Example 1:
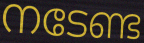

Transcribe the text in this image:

നടേണ്ട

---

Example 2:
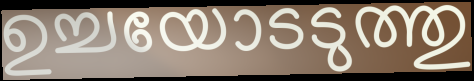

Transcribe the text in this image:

ഉച്ചയോടടുത്തു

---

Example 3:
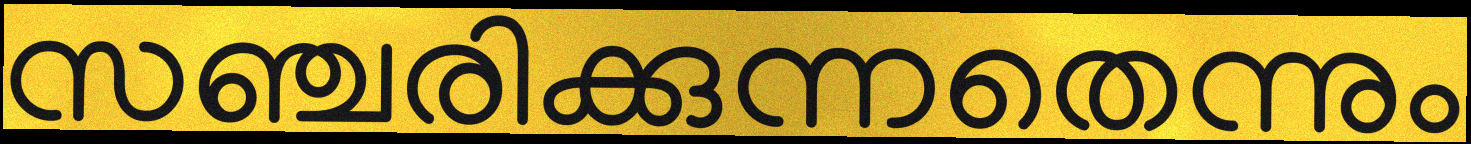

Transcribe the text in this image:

സഞ്ചരിക്കുന്നതെന്നും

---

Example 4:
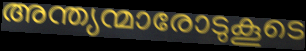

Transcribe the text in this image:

അന്ത്യന്മാരോടുകൂടെ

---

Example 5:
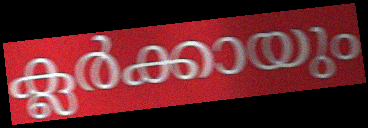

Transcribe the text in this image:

ക്ലർക്കായും